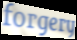
forgery